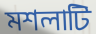
মশলাটি